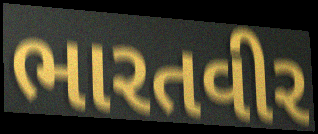
ભારતવીર